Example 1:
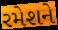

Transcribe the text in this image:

રમેશને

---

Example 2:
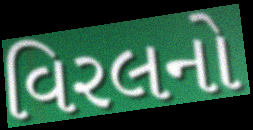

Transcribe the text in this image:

વિરલનો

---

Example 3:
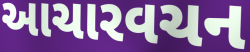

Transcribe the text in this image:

આચારવચન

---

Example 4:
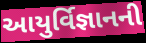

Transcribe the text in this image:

આયુર્વિજ્ઞાનની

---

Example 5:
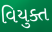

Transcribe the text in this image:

વિયુક્ત